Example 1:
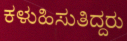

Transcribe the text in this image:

ಕಳುಹಿಸುತಿದ್ದರು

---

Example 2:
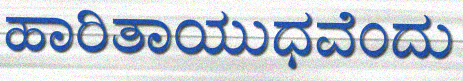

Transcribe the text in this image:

ಹಾರಿತಾಯುಧವೆಂದು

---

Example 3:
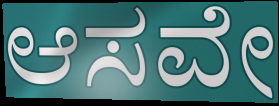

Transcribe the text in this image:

ಆಸವೇ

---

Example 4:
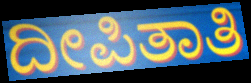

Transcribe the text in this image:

ದೀಪಿತಾತಿ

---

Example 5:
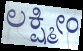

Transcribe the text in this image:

ಲಕ್ಷ್ಮೀಂ